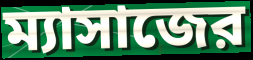
ম্যাসাজের